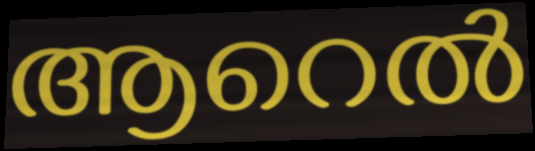
ആറെൽ